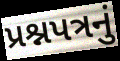
પ્રશ્નપત્રનું